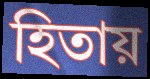
হিতায়